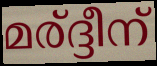
മര്ദ്ദീന്